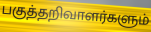
பகுத்தறிவாளர்களும்